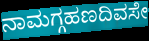
ನಾಮಗ್ಗಹಣದಿವಸೇ